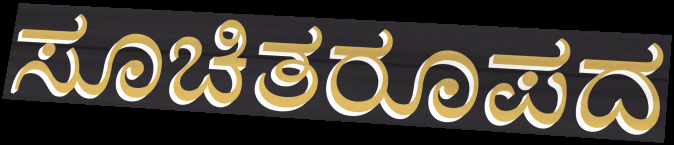
ಸೂಚಿತರೂಪದ